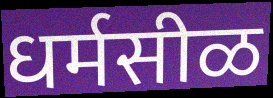
धर्मसीळ